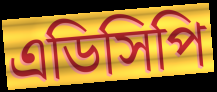
এডিসিপি